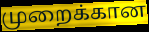
முறைக்கான